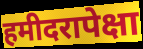
हमीदरापेक्षा